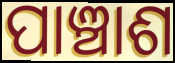
ପାଞ୍ଚାଶ